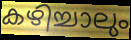
കഴിച്ചാലും